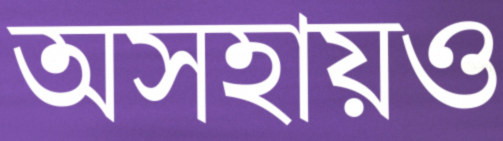
অসহায়ও